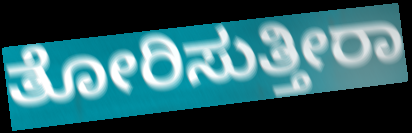
ತೋರಿಸುತ್ತೀರಾ